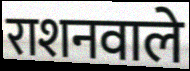
राशनवाले